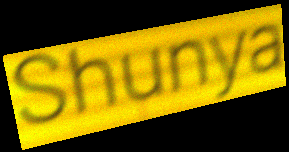
Shunya